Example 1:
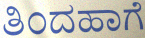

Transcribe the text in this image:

ತಿಂದಹಾಗೆ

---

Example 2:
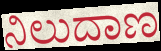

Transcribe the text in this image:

ನಿಲುದಾಣ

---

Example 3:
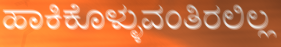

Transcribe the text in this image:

ಹಾಕಿಕೊಳ್ಳುವಂತಿರಲಿಲ್ಲ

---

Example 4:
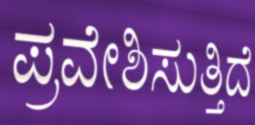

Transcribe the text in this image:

ಪ್ರವೇಶಿಸುತ್ತಿದೆ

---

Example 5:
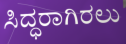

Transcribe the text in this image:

ಸಿದ್ಧರಾಗಿರಲು